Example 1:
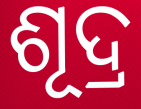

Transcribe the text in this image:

ଶୂଦ୍ର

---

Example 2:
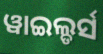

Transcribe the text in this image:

ୱାଇଲ୍ଡର୍ସ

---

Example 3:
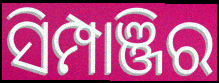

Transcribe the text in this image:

ସିମ୍ପାଞ୍ଜିର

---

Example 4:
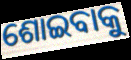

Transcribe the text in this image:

ଶୋଇବାକୁ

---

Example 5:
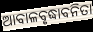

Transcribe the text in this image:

ଆବାଳବୃଦ୍ଧାବନିତା